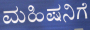
ಮಹಿಷನಿಗೆ